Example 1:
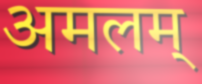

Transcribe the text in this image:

अमलम्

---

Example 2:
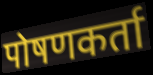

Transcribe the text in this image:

पोषणकर्ता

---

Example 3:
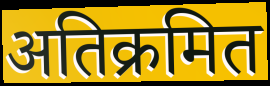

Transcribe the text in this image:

अतिक्रमित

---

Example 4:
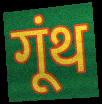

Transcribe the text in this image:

गूंथ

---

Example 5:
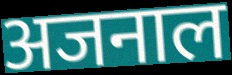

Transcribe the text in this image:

अजनाल